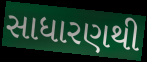
સાધારણથી